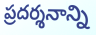
ప్రదర్శనాన్ని